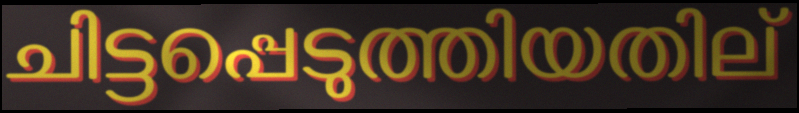
ചിട്ടപ്പെടുത്തിയതില്